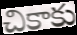
చికాకు